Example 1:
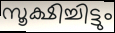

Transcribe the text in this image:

സൂക്ഷിച്ചിട്ടും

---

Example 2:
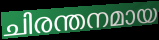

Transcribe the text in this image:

ചിരന്തനമായ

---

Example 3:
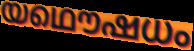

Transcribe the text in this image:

യഥൌഷധം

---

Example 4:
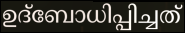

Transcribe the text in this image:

ഉദ്ബോധിപ്പിച്ചത്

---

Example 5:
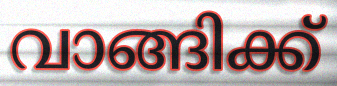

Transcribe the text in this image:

വാങ്ങിക്ക്